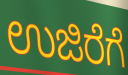
ಉಜಿರೆಗೆ